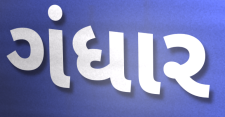
ગંધાર